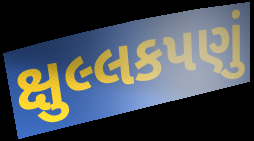
ક્ષુલ્લકપણું